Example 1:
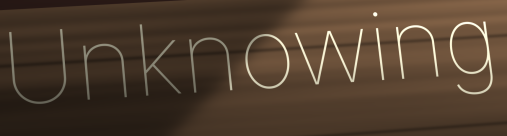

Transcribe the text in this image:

Unknowing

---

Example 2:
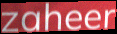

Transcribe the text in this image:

zaheer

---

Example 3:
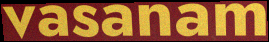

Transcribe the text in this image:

vasanam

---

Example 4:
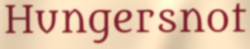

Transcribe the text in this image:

Hungersnot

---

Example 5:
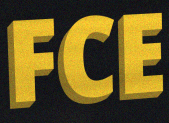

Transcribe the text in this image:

FCE